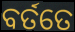
ବର୍ତତେ